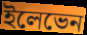
ইলেভেন